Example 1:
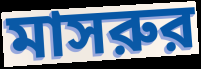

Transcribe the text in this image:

মাসরুর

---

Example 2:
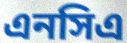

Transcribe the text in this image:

এনসিএ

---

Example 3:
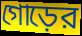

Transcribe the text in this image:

গোড়ের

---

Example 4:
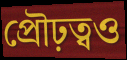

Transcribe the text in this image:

প্রৌঢ়ত্বও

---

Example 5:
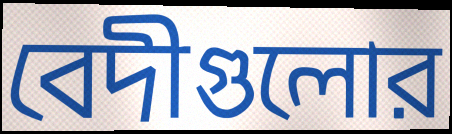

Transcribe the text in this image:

বেদীগুলোর